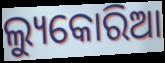
ଲ୍ୟୁକୋରିଆ